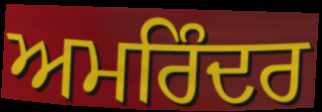
ਅਮਰਿੰਦਰ